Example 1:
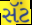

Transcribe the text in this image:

સૅંટ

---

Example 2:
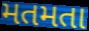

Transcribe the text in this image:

મતમતા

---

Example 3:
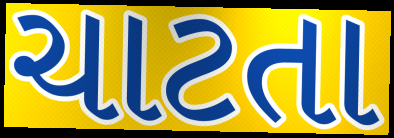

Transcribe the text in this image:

ચાટતા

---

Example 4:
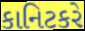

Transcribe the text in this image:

કાનિટકરે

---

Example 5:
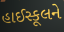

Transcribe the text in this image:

હાઈસ્કૂલને